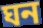
ঘন